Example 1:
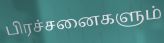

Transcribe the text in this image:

பிரச்சனைகளும்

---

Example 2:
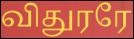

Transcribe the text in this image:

விதுரரே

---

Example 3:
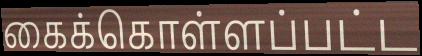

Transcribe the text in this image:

கைக்கொள்ளப்பட்ட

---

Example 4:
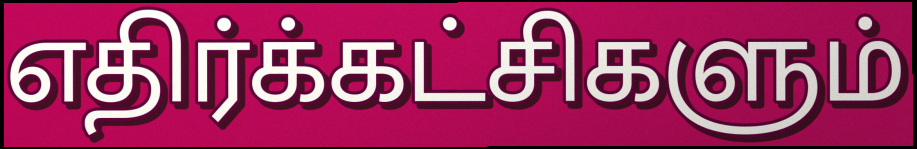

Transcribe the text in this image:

எதிர்க்கட்சிகளும்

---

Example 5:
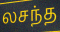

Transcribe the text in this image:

லசந்த